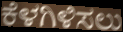
ಕೆಳಗಿಳಿಸಲು